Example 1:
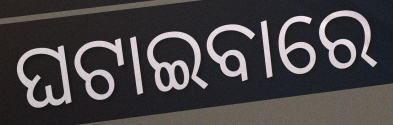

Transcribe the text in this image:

ଘଟାଇବାରେ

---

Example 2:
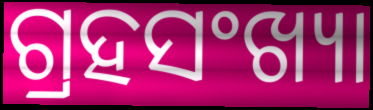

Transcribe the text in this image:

ଗ୍ରହସଂଖ୍ୟା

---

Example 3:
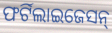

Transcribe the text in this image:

ଫର୍ଟିଲାଇଜେସନ୍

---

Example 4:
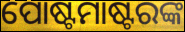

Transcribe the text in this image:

ପୋଷ୍ଟମାଷ୍ଟରଙ୍କ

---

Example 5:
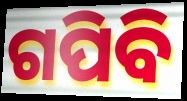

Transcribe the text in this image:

ଗପିବି